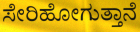
ಸೇರಿಹೋಗುತ್ತಾನೆ